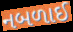
નબળાઈ